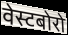
वेस्टबोरो